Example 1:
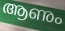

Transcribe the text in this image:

ആണും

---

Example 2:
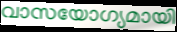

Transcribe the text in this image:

വാസയോഗ്യമായി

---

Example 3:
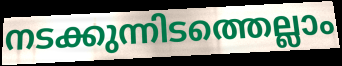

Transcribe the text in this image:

നടക്കുന്നിടത്തെല്ലാം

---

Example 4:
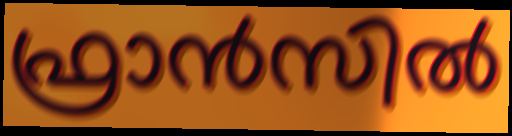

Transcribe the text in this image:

ഫ്രാൻസിൽ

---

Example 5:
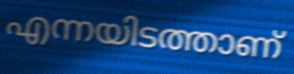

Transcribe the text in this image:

എന്നയിടത്താണ്